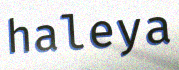
haleya